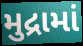
મુદ્રામાં